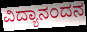
ವಿದ್ಯಾನಂದನ